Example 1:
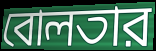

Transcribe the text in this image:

বোলতার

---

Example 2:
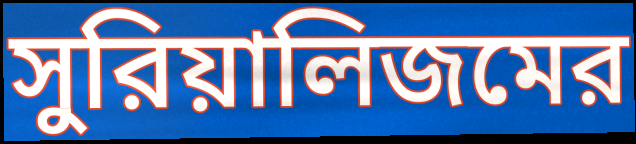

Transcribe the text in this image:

সুরিয়ালিজমের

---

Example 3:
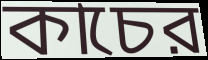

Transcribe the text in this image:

কাচের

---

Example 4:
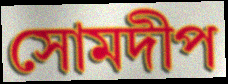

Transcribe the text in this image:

সোমদীপ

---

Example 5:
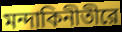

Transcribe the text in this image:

মন্দাকিনীতীরে